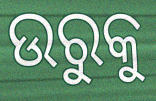
ଉରୁକୁ